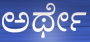
ಅರ್ಥೇ